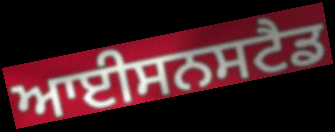
ਆਈਸਨਸਟੈਡ